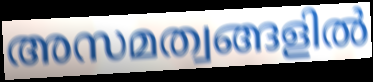
അസമത്വങ്ങളിൽ